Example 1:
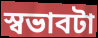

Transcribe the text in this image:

স্বভাবটা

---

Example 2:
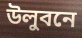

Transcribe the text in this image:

উলুবনে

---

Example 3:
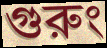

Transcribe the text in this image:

গুরুং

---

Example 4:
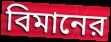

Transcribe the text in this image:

বিমানের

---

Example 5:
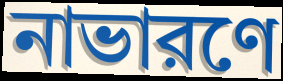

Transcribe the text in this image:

নাভারণে